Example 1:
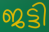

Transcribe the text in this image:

ജട്ടി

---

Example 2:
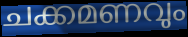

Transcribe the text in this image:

ചക്കമണവും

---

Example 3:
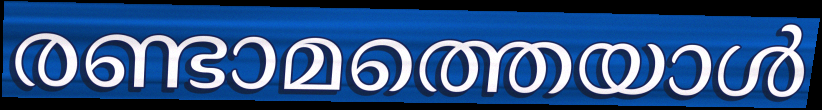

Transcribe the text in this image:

രണ്ടാമത്തെയാൾ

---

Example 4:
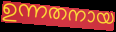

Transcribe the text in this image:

ഉന്നതനായ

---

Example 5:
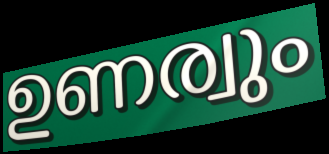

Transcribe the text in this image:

ഉണര്വും